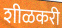
शीळकरी